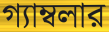
গ্যাম্বলার